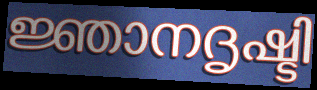
ജ്ഞാനദൃഷ്ടി